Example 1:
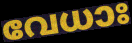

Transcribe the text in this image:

വേധാഃ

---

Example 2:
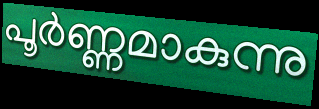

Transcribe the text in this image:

പൂർണ്ണമാകുന്നു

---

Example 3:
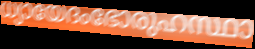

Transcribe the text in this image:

ധ്യായേദംഭോരുഹസ്ഥാ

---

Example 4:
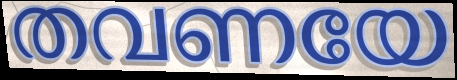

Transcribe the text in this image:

തവണയേ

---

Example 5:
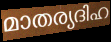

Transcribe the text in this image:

മാതര്യദിഹ